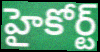
హైకోర్ట్